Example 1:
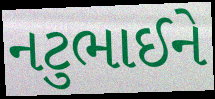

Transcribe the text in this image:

નટુભાઈને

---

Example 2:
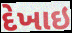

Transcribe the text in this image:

દેખાઇ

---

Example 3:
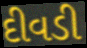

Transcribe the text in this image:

દીવડી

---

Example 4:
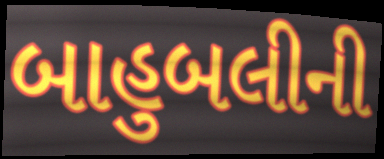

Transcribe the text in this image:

બાહુબલીની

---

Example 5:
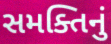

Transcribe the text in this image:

સમક્તિનું